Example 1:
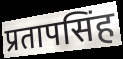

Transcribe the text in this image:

प्रतापसिंह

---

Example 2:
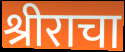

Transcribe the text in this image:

श्रीराचा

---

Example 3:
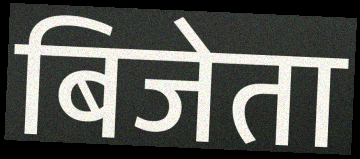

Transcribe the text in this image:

बिजेता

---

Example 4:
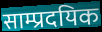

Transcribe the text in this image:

साम्प्रदयिक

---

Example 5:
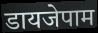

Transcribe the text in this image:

डायजेपाम